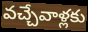
వచ్చేవాళ్లకు